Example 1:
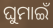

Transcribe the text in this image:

ଘୁମାଇଁ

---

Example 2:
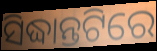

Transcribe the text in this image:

ସିଦ୍ଧାନ୍ତଟିରେ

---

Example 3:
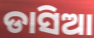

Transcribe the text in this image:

ଡାସିଆ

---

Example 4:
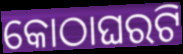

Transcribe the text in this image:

କୋଠାଘରଟି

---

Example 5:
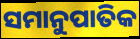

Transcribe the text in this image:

ସମାନୁପାତିକ